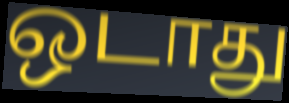
ஒடாது